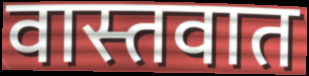
वास्तवात